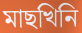
মাছখিনি